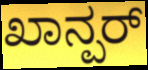
ಖಾನ್ಪರ್